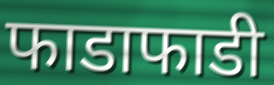
फाडाफाडी